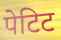
पेटिट